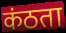
कंठता